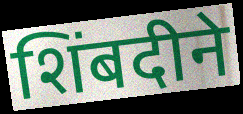
शिंबदीने